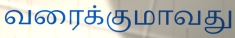
வரைக்குமாவது